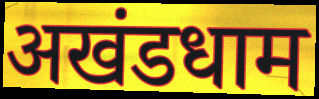
अखंडधाम